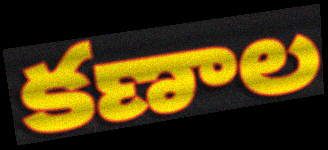
కణాల